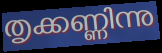
തൃക്കണ്ണിന്നു